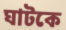
ঘাটকে